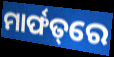
ମାର୍ଫତ୍‌ରେ